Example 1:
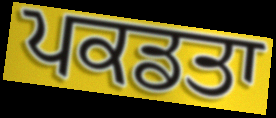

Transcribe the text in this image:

ਪਕਡਤਾ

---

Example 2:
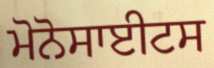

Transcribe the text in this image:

ਮੋਨੋਸਾਈਟਸ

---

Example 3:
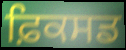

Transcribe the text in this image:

ਫ਼ਿਕਸਡ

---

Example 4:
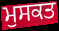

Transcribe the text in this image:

ਮੁਸਕਤ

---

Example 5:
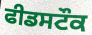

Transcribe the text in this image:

ਫੀਡਸਟੌਕ